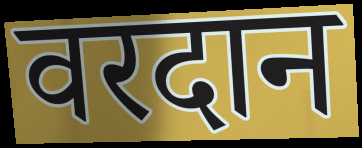
वरदान